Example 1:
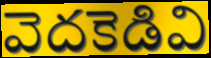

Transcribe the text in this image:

వెదకెడివి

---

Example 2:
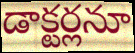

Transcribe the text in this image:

డాక్టర్లనూ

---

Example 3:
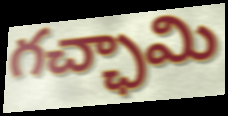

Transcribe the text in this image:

గచ్ఛామి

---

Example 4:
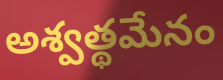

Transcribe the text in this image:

అశ్వత్థమేనం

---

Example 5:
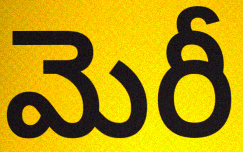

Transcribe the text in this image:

మెరీ